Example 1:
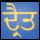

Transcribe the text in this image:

ਦ੍ਰੈਤ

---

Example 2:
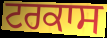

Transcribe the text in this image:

ਟਰਕਾਸ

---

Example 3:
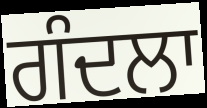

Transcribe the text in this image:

ਗੰਦਲਾ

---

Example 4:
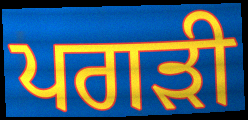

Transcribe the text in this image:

ਪਗੜੀ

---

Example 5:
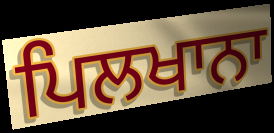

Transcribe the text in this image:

ਪਿਲਖਾਨਾ